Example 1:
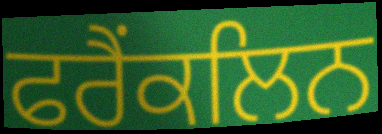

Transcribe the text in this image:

ਫਰੈਂਕਲਿਨ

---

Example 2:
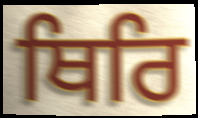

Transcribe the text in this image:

ਥਿਰਿ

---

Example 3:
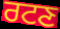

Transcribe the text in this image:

ਰਟਣ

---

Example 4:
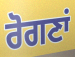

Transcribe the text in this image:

ਰੋਗਣਾਂ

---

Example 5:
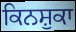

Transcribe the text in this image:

ਕਿਨਸ਼ੁਕਾ